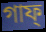
গাফ্